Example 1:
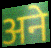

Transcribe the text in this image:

अने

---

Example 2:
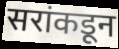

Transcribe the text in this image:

सरांकडून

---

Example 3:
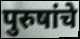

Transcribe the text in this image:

पुरुषांचे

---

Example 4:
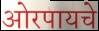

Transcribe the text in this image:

ओरपायचे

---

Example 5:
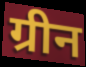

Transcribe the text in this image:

ग्रीन